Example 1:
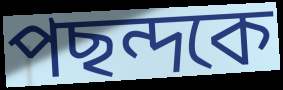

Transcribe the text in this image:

পছন্দকে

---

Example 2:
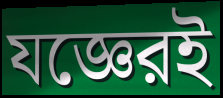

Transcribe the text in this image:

যজ্ঞেরই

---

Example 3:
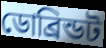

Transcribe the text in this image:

ডোব্রিন্ডট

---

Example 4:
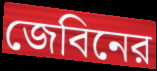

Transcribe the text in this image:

জেবিনের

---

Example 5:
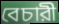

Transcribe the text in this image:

বেচারী